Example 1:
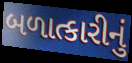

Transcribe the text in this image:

બળાત્કારીનું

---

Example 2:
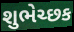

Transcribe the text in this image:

શુભેચ્છક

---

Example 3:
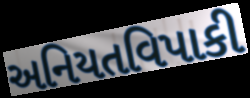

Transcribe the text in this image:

અનિયતવિપાકી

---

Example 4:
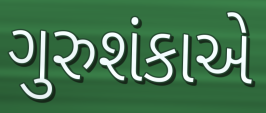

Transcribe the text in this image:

ગુરુશંકાએ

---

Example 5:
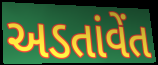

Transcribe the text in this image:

અડતાંવેંત